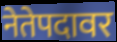
नेतेपदावर